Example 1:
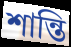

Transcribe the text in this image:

শান্তি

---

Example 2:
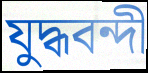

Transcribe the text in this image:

যুদ্ধবন্দী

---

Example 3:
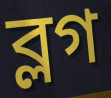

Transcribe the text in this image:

ব্লগ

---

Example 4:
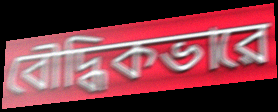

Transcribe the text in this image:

বৌদ্ধিকভাৱে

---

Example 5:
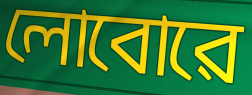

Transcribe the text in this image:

লোবোৱে